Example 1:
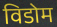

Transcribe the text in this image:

विडोम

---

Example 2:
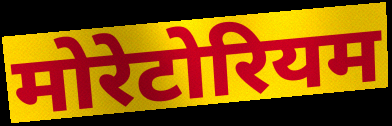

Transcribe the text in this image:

मोरेटोरियम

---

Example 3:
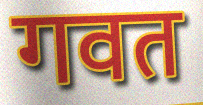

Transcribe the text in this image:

गवत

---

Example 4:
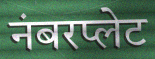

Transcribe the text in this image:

नंबरप्लेट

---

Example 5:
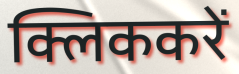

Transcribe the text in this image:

क्लिककरें